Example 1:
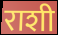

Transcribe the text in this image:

राशी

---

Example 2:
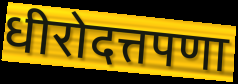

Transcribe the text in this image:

धीरोदत्तपणा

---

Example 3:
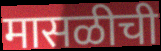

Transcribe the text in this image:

मासळीची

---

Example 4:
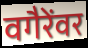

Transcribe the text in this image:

वगैरेंवर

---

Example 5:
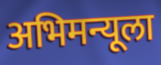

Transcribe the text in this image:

अभिमन्यूला